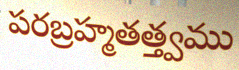
పరబ్రహ్మతత్త్వము